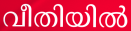
വീതിയിൽ